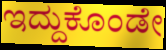
ಇದ್ದುಕೊಂಡೇ